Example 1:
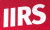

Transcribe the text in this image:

IIRS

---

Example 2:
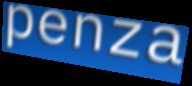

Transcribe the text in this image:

penza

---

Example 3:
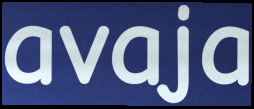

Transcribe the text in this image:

avaja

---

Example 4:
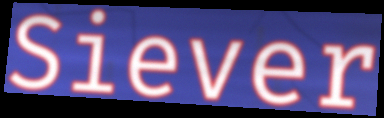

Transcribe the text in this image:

Siever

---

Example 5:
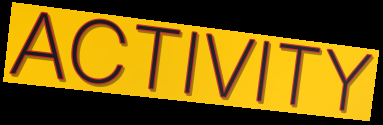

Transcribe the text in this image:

ACTIVITY